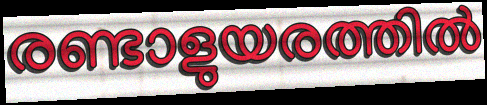
രണ്ടാളുയരത്തിൽ